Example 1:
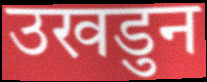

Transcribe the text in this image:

उखडुन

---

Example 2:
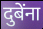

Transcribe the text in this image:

दुबेंना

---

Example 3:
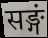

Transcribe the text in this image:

सङ्गं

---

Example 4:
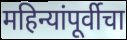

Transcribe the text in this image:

महिन्यांपूर्वीचा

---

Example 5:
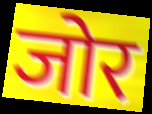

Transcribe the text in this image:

जोर